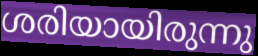
ശരിയായിരുന്നു